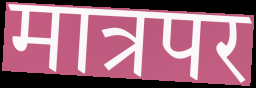
मात्रपर